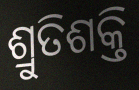
ଶ୍ରୁତିଶକ୍ତି